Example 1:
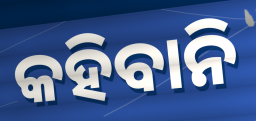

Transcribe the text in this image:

କହିବାନି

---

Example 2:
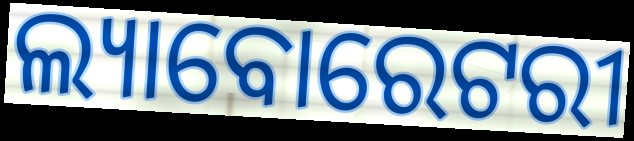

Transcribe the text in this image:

ଲ୍ୟାବୋରେଟରୀ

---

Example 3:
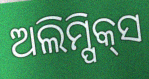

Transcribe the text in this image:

ଅଲିମ୍ପିକ୍‌ସ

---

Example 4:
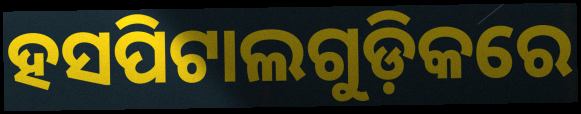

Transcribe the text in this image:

ହସପିଟାଲଗୁଡ଼ିକରେ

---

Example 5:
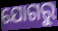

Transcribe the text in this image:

ଯୋଗରୁ